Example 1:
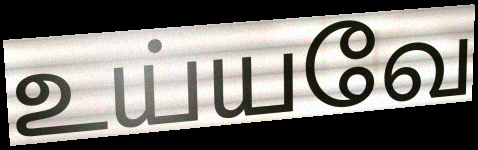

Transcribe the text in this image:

உய்யவே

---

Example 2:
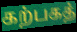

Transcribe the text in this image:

கற்பகத்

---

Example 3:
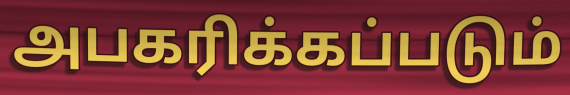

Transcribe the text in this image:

அபகரிக்கப்படும்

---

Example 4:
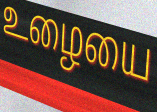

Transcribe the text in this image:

உழையை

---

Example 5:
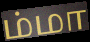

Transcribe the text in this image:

ம்மா